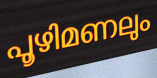
പൂഴിമണലും